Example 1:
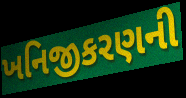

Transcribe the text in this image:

ખનિજીકરણની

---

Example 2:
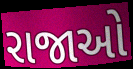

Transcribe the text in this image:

રાજાઓ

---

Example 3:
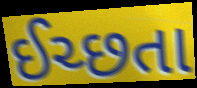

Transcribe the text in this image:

ઈચ્છતા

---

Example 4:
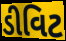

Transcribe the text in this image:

ડીવિટ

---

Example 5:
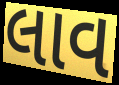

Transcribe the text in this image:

લાવ